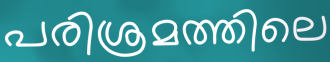
പരിശ്രമത്തിലെ